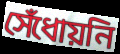
সেঁধোয়নি